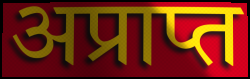
अप्राप्त